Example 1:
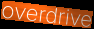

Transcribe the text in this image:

overdrive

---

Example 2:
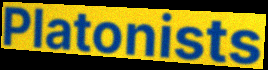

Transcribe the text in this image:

Platonists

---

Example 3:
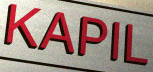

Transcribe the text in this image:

KAPIL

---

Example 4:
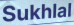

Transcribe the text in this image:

Sukhlal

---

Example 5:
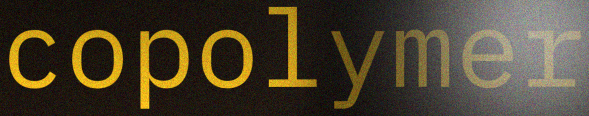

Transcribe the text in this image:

copolymer